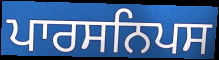
ਪਾਰਸਨਿਪਸ